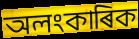
অলংকাৰিক